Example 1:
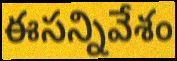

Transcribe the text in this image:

ఈసన్నివేశం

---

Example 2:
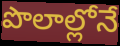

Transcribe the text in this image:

పొలాల్లోనే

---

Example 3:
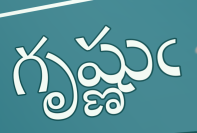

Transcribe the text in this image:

గృష్ణుఁ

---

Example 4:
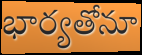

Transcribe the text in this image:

భార్యతోనూ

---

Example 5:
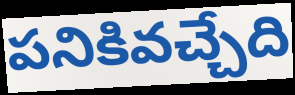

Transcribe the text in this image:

పనికివచ్చేది